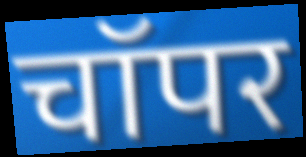
चॉपर